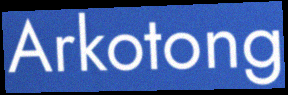
Arkotong